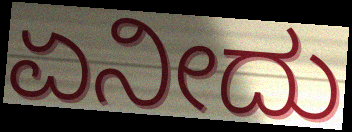
ಏನೀದು